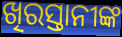
ଖିରସ୍ତାନୀଙ୍କ